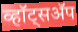
व्हॉट्सॲप